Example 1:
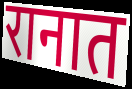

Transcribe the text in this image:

रानात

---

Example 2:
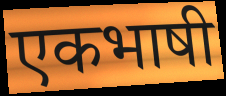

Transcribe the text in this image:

एकभाषी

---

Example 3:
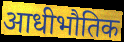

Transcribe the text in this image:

आधीभौतिक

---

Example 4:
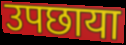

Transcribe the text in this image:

उपछाया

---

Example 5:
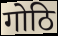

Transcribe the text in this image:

गोठि